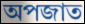
অপজাত